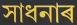
সাধনাৰ